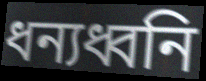
ধন্যধ্বনি